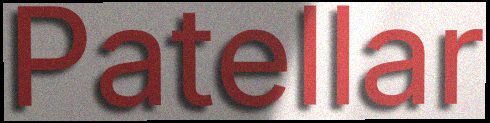
Patellar